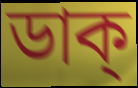
ডাক্